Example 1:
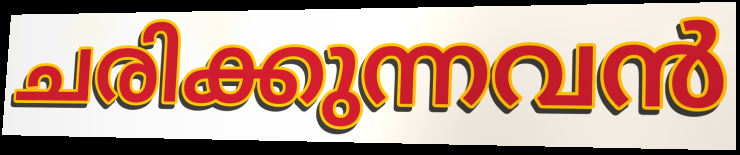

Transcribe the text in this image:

ചരിക്കുന്നവൻ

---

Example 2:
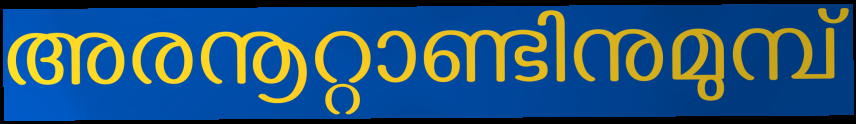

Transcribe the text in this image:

അരനൂറ്റാണ്ടിനുമുമ്പ്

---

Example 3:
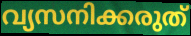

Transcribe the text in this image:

വ്യസനിക്കരുത്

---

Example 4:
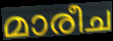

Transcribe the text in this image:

മാരീച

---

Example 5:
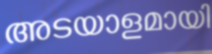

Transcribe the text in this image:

അടയാളമായി